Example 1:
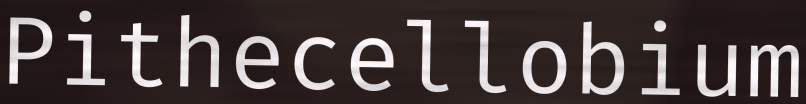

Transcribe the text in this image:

Pithecellobium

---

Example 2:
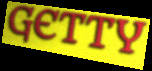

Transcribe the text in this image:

GETTY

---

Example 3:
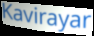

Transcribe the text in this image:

Kavirayar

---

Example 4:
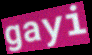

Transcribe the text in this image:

gayi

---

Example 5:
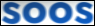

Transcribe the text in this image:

soos